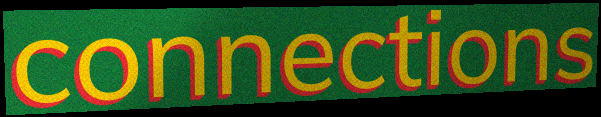
connections